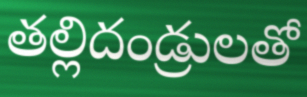
తల్లిదండ్రులతో